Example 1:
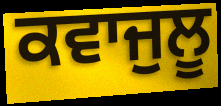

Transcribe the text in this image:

ਕਵਾਜੁਲੂ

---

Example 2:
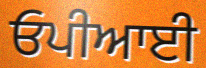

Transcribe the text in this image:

ਓਪੀਆਈ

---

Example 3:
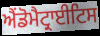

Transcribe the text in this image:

ਐਂਡੋਮੈਟ੍ਰਾਈਟਿਸ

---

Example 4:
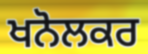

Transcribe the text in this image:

ਖਨੋਲਕਰ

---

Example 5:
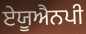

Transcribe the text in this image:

ਏਯੂਐਨਪੀ